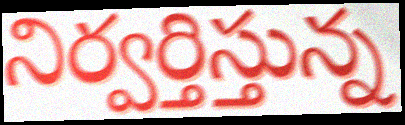
నిర్వర్తిస్తున్న